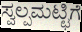
ಸ್ವಲ್ಪಮಟ್ಟಿಗೆ